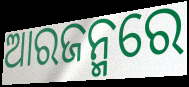
ଆରଜନ୍ମରେ